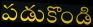
పడుకొండి